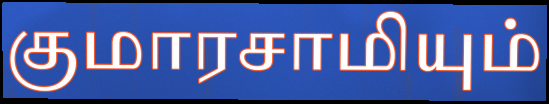
குமாரசாமியும்